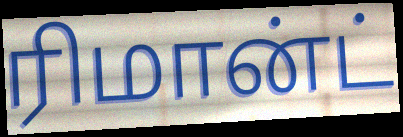
ரிமான்ட்